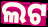
ଲଟ